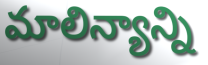
మాలిన్యాన్ని